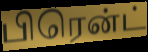
பிரென்ட்